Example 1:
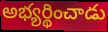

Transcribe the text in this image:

అభ్యర్థించాడు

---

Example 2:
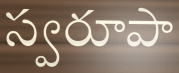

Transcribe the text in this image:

స్వరూపా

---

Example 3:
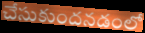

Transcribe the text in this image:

చేసుకుందనడంలో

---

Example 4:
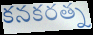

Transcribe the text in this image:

కనకరత్న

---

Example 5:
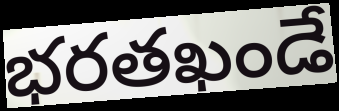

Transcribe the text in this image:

భరతఖండే